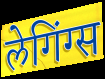
लेगिंग्स